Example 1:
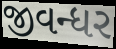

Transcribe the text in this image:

જીવન્ધર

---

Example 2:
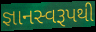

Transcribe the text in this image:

જ્ઞાનસ્વરૂપથી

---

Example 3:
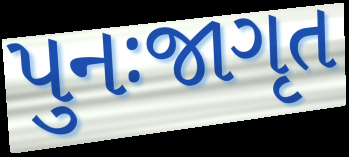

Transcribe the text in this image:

પુનઃજાગૃત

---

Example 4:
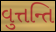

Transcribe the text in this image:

વુત્તન્તિ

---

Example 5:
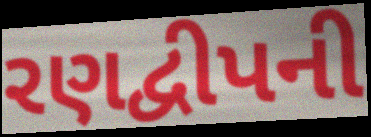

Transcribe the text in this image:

રણદ્વીપની